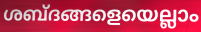
ശബ്ദങ്ങളെയെല്ലാം